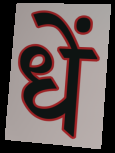
धें